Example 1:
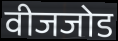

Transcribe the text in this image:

वीजजोड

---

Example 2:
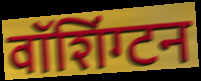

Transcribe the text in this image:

वॉशिंग्टन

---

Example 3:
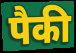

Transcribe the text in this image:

पैकी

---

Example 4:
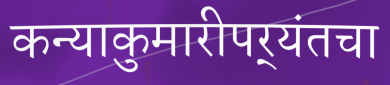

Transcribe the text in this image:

कन्याकुमारीपर्यंतचा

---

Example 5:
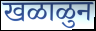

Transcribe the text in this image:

खळाळुन